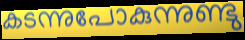
കടന്നുപോകുന്നുണ്ടു